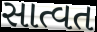
સાત્વત